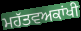
ਮਹੱਤਵਅਕਾਂਖੀ